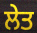
ਲੇਤ